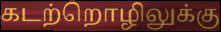
கடற்றொழிலுக்கு